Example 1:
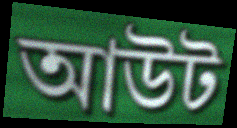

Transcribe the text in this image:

আউট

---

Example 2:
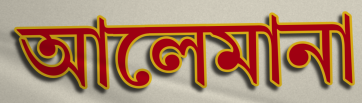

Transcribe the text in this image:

আলেমানা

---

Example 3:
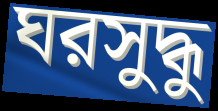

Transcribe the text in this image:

ঘরসুদ্ধু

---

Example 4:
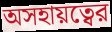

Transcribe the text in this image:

অসহায়ত্বের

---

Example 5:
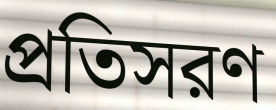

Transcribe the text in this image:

প্রতিসরণ